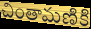
చింతామణికి